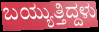
ಬಯ್ಯುತ್ತಿದ್ದಳು